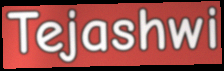
Tejashwi